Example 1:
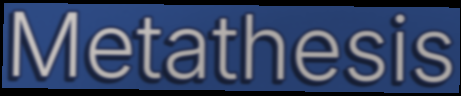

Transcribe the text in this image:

Metathesis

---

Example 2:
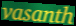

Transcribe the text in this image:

vasanth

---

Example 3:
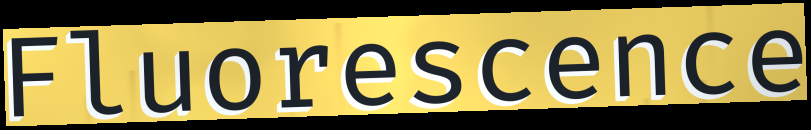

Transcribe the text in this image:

Fluorescence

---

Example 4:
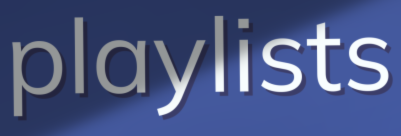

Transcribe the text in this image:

playlists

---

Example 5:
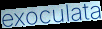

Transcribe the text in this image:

exoculata